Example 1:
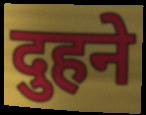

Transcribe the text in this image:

दुहने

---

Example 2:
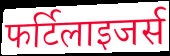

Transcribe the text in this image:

फर्टिलाइजर्स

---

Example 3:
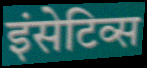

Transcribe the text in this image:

इंसेटिव्स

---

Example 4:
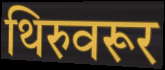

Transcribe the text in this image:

थिरुवरूर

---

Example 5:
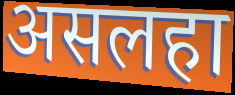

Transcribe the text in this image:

असलहा